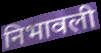
निभावली